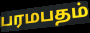
பரமபதம்